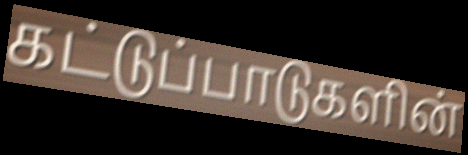
கட்டுப்பாடுகளின்